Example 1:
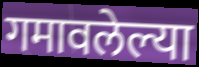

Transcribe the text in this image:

गमावलेल्या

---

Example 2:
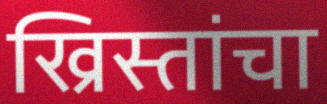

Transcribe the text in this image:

ख्रिस्तांचा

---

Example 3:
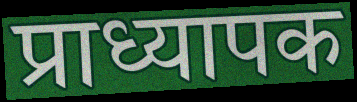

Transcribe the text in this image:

प्राध्यापक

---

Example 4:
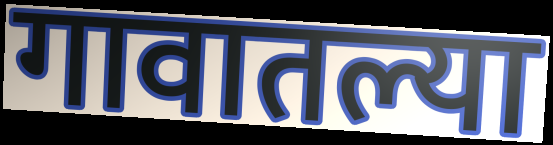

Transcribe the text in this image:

गावातल्या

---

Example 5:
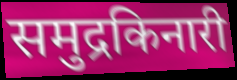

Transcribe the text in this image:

समुद्रकिनारी